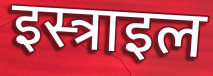
इस्त्राइल